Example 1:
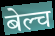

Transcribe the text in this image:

बेल्च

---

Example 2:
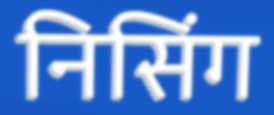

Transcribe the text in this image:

निसिंग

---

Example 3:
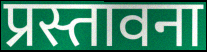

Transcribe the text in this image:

प्रस्‍तावना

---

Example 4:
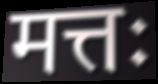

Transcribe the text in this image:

मत्तः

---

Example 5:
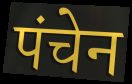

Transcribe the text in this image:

पंचेन